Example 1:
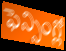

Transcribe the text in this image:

ఫెన్సింగ్లో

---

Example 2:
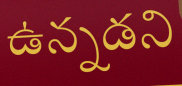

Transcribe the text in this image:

ఉన్నడని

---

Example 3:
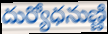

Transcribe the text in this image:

దుర్యోధనుణ్ణి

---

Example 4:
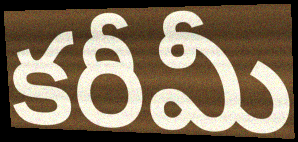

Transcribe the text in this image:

కరీమీ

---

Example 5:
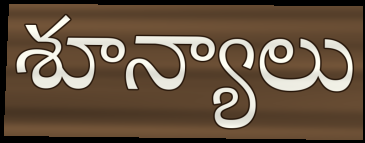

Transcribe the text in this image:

శూన్యాలు